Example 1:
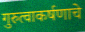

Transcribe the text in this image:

गुरुत्वाकर्षणाचे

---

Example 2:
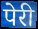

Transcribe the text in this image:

पेरी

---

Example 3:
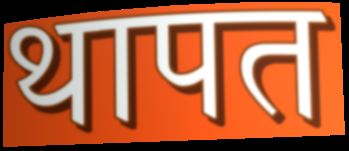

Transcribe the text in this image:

थापत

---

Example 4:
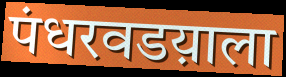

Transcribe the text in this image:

पंधरवडय़ाला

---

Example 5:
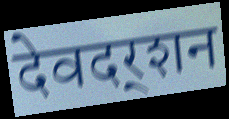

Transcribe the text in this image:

देवदर्शन